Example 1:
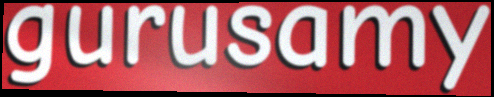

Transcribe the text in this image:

gurusamy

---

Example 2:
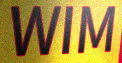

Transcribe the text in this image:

WIM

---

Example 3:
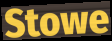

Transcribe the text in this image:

Stowe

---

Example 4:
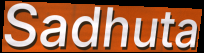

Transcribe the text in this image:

Sadhuta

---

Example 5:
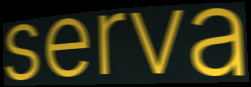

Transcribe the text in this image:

serva